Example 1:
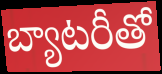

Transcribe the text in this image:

బ్యాటరీతో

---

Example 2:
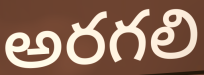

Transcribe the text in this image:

అరగలి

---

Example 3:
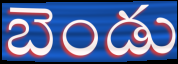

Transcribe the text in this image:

బెండు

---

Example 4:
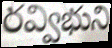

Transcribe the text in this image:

రవ్విభుని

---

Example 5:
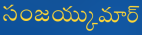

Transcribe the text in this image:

సంజయ్కుమార్